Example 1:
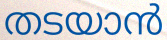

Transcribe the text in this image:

തടയാൻ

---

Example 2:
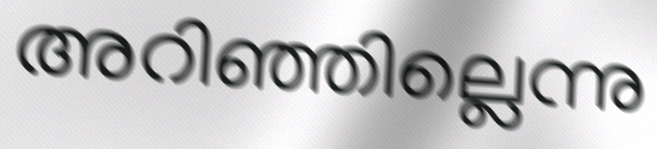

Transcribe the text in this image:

അറിഞ്ഞില്ലെന്നു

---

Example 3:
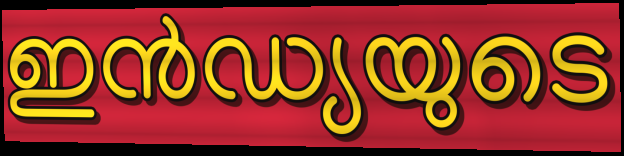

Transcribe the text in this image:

ഇൻഡ്യയുടെ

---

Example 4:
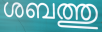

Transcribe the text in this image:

ശബത്തു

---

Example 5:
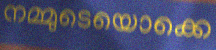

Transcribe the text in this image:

നമ്മുടെയൊക്കെ